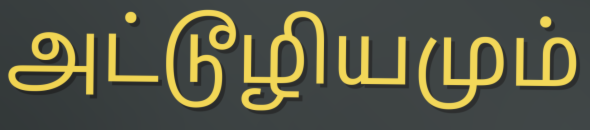
அட்டூழியமும்